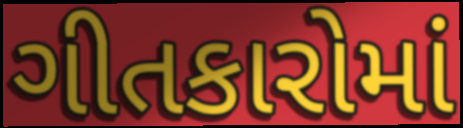
ગીતકારોમાં